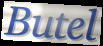
Butel